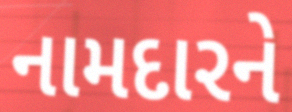
નામદારને